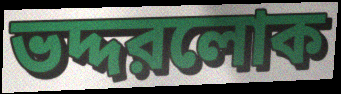
ভদ্দরলোক